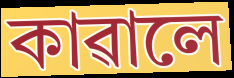
কাৱালে